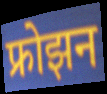
फ्रोझन